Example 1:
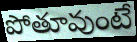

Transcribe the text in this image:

పోతూవుంటే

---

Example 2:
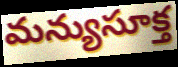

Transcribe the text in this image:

మన్యుసూక్త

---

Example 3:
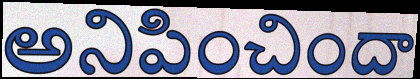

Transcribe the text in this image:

అనిపించిందా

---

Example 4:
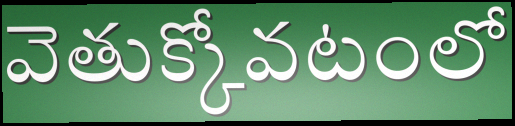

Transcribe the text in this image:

వెతుక్కోవటంలో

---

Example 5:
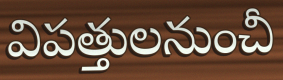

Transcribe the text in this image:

విపత్తులనుంచీ